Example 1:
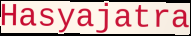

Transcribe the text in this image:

Hasyajatra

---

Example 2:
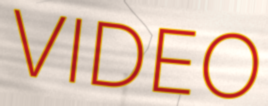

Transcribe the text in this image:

VIDEO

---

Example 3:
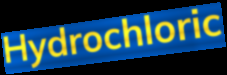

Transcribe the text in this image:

Hydrochloric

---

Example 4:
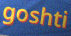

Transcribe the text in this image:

goshti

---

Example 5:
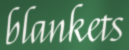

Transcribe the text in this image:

blankets